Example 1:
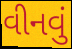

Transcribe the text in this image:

વીનવું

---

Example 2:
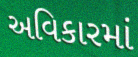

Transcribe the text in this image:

અવિકારમાં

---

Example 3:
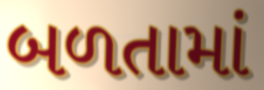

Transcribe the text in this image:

બળતામાં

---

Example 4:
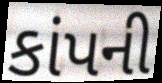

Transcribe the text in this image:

કાંપની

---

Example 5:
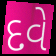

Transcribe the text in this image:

દવે